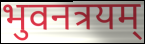
भुवनत्रयम्